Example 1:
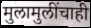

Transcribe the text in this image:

मुलामुलींचाही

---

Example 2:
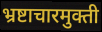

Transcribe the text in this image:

भ्रष्टाचारमुक्ती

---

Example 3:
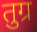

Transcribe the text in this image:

तुग्र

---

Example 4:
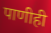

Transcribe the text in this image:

पाणीही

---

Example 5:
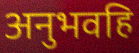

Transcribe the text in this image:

अनुभवहि